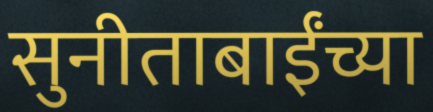
सुनीताबाईंच्या